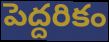
పెద్దరికం